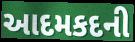
આદમકદની